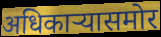
अधिकाऱ्यासमोर